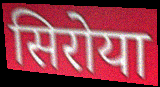
सिरोया